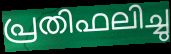
പ്രതിഫലിച്ചു